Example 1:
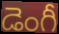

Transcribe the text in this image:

డెంగీ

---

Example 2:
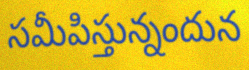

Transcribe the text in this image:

సమీపిస్తున్నందున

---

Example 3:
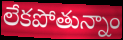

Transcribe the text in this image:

లేకపోతున్నాం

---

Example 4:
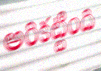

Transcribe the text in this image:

అరికట్టింది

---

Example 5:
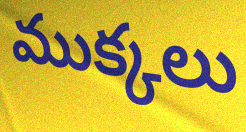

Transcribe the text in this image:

ముక్కలు